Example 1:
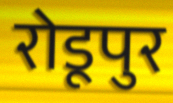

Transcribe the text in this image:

रोडूपुर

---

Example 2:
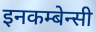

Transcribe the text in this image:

इनकम्बेन्सी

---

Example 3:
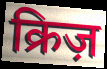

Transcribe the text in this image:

क्रिज़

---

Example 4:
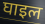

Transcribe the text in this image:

घाइल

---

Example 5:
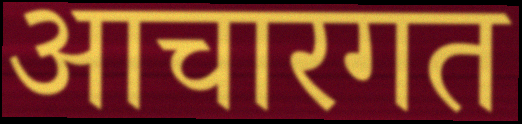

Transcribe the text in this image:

आचारगत